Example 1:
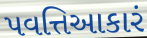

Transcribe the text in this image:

પવત્તિઆકારં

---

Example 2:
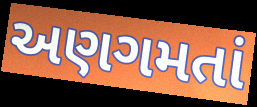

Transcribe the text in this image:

અણગમતાં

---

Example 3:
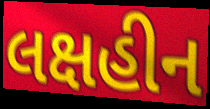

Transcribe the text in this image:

લક્ષહીન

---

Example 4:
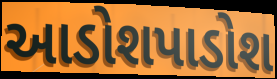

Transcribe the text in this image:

આડોશપાડોશ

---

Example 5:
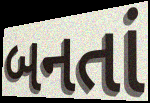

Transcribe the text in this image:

બનતાં